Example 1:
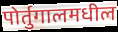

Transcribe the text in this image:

पोर्तुगालमधील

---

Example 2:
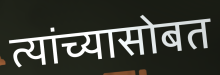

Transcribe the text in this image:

त्यांच्यासोबत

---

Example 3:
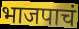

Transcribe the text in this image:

भाजपाचं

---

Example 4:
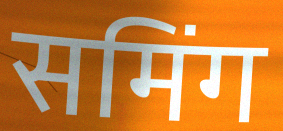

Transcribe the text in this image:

समिंग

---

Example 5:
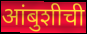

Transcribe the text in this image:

आंबुशीची